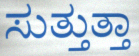
ಸುತ್ತುತ್ತಾ